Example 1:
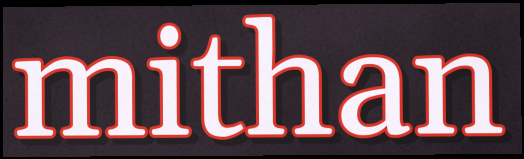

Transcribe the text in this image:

mithan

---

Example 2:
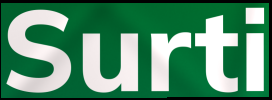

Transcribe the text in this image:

Surti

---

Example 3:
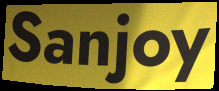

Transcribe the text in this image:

Sanjoy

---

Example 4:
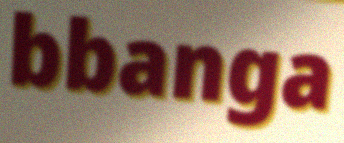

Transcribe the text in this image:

bbanga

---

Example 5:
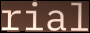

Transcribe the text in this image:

rial